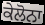
ਕੇਲੋਨਾ